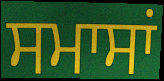
ਸਮਾਸਾਂ